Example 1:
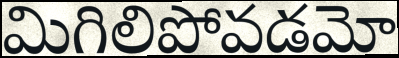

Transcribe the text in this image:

మిగిలిపోవడమో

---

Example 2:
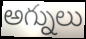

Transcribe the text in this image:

అగ్నులు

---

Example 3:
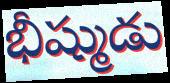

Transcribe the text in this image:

భీష్ముడు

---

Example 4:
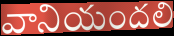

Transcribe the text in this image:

వానియందలి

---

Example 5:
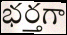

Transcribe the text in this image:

భర్తగా